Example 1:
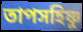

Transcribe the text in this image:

তাপসহিষ্ণু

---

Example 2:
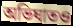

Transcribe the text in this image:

অভিঘাতও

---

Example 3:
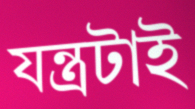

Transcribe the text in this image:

যন্ত্রটাই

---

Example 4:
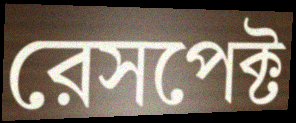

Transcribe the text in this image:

রেসপেক্ট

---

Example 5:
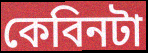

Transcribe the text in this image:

কেবিনটা